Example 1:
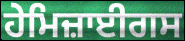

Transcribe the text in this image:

ਹੇਮਿਜ਼ਾਈਗਸ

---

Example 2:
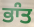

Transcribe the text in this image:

ਭਾੰਤ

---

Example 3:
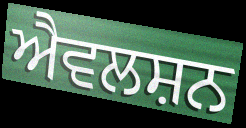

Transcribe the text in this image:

ਐਵਲਸ਼ਨ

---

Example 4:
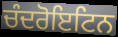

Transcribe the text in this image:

ਚੰਦਰੋਇਟਿਨ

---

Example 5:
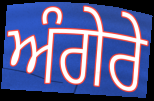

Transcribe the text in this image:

ਅੰਗੇਰੇ